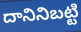
దానినిబట్టి